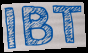
IBT